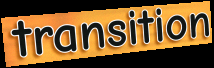
transition